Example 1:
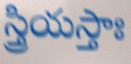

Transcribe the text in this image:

స్త్రియస్తాః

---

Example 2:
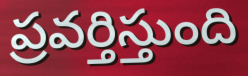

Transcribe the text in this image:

ప్రవర్తిస్తుంది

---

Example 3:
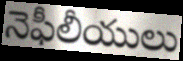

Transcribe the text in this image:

నెఫీలీయులు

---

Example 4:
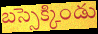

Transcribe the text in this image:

బస్సెక్కిండు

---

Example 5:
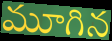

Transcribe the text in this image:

మూగిన